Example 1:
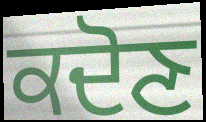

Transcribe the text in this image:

ਕਦੋਣ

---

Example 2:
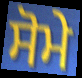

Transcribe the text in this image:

ਸੋਮੇ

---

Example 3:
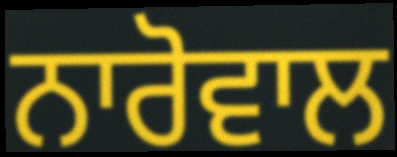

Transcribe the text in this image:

ਨਾਰੋਵਾਲ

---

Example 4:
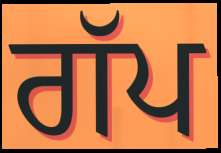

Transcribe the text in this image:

ਗੱਪ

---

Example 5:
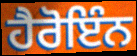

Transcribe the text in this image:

ਹੈਰੋਇੰਨ